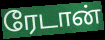
ரேடான்